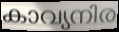
കാവ്യനിര